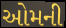
ઓમની